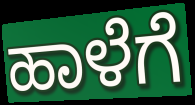
ಹಾಳೆಗೆ